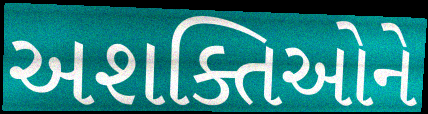
અશક્તિઓને